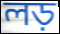
লড়